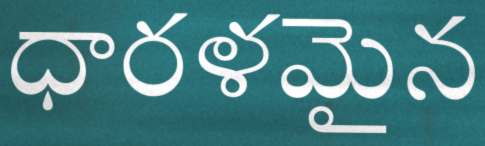
ధారళమైన